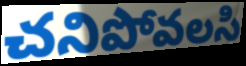
చనిపోవలసి